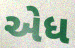
એધ